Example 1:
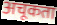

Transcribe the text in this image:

अचूकता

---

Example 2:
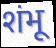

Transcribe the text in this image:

शंभू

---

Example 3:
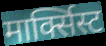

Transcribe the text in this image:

मार्क्सिस्ट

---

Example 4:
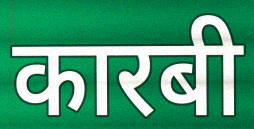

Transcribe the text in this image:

कारबी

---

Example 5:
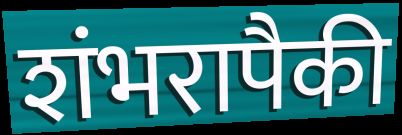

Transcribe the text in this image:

शंभरापैकी